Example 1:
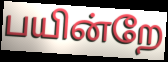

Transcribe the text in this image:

பயின்றே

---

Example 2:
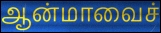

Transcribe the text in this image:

ஆன்மாவைச்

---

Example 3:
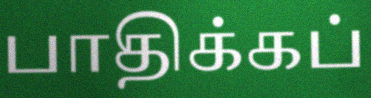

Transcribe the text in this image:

பாதிக்கப்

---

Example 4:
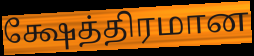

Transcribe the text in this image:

க்ஷேத்திரமான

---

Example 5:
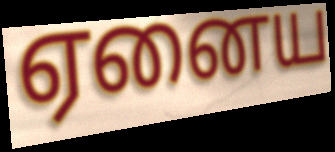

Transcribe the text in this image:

ஏனைய